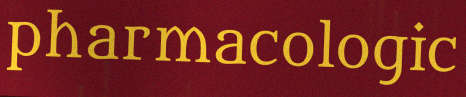
pharmacologic